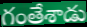
గంతేశాడు